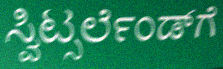
ಸ್ವಿಟ್ಸರ್ಲೆಂಡ್‌ಗೆ